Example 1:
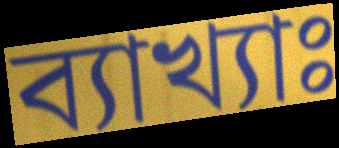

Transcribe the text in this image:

ব্যাখ্যাঃ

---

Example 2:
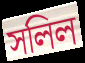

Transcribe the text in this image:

সলিল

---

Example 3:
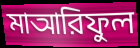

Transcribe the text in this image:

মাআরিফুল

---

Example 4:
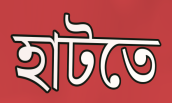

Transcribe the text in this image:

হাটতে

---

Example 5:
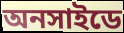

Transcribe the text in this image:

অনসাইডে